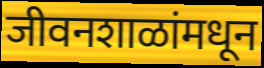
जीवनशाळांमधून